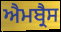
ਐਮਬ੍ਰੈਸ